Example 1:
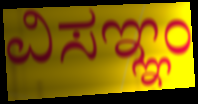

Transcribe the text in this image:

ವಿಸಞ್ಞಂ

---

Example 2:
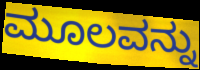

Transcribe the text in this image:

ಮೂಲವನ್ನು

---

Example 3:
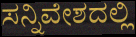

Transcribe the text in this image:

ಸನ್ನಿವೇಶದಲ್ಲಿ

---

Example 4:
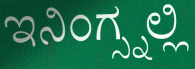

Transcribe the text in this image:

ಇನಿಂಗ್ಸ್ನಲ್ಲಿ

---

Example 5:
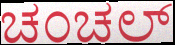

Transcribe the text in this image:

ಚಂಚಲ್